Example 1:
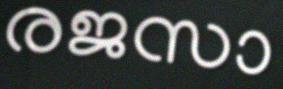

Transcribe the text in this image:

രജസാ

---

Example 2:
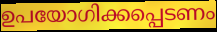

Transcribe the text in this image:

ഉപയോഗിക്കപ്പെടണം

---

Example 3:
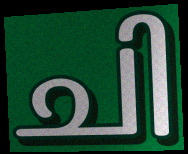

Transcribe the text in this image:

ചി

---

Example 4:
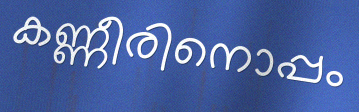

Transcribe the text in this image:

കണ്ണീരിനൊപ്പം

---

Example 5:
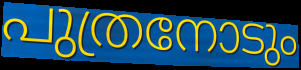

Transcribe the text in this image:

പുത്രനോടും